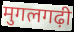
मुगलगढ़ी